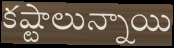
కష్టాలున్నాయి